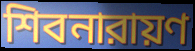
শিবনারায়ণ